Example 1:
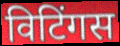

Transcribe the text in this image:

विटिंगस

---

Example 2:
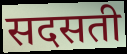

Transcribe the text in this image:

सदसती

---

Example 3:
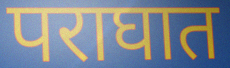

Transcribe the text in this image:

पराघात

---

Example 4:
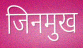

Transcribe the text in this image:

जिनमुख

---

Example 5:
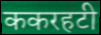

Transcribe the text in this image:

ककरहटी